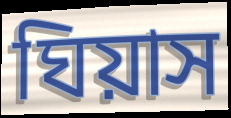
ঘিয়াস